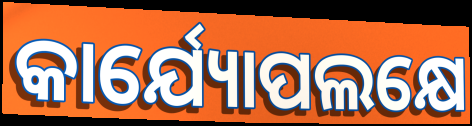
କାର୍ଯ୍ୟୋପଲକ୍ଷେ